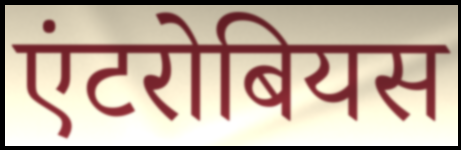
एंटरोबियस